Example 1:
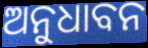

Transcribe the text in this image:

ଅନୁଧାବନ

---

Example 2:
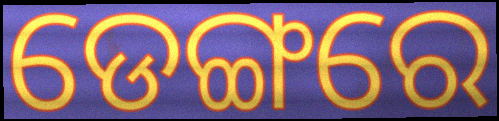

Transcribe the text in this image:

ଡେଙ୍ଗରେ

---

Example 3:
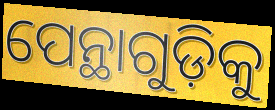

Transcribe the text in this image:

ପେନ୍ଥାଗୁଡ଼ିକୁ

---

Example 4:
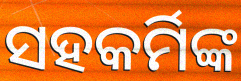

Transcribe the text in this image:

ସହକର୍ମିଙ୍କ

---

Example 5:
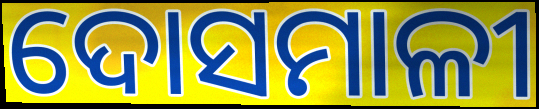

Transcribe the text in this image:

ଦୋସମାଳୀ